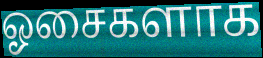
ஓசைகளாக